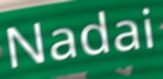
Nadai